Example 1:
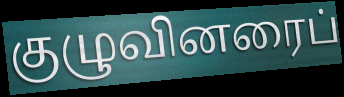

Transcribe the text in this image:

குழுவினரைப்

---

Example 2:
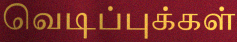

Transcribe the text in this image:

வெடிப்புக்கள்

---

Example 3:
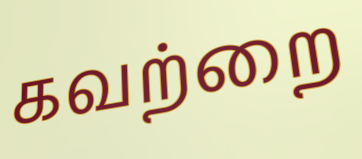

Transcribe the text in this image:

கவற்றை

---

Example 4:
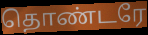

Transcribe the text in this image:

தொண்டரே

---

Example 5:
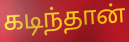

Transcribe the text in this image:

கடிந்தான்